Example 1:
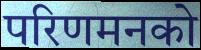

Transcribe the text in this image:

परिणमनको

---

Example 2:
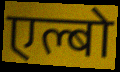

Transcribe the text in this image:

एल्बो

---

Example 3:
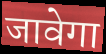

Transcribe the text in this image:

जावेगा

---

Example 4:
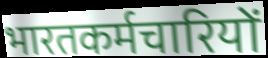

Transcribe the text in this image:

भारतकर्मचारियों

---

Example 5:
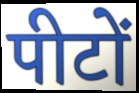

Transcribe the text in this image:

पीटों